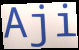
Aji